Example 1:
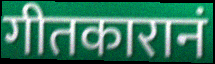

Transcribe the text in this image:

गीतकारानं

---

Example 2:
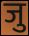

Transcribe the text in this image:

जु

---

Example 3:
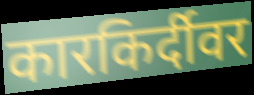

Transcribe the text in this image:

कारकिर्दीवर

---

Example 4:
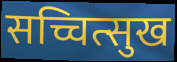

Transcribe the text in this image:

सच्चित्सुख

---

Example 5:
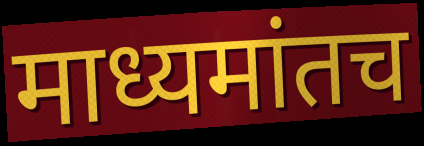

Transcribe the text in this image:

माध्यमांतच